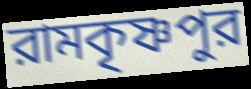
রামকৃষ্ণপুর